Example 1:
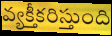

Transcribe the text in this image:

వ్యక్తీకరిస్తుంది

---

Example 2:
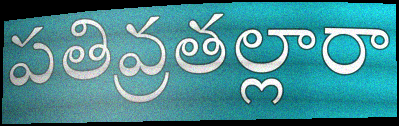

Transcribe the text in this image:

పతివ్రతల్లారా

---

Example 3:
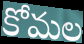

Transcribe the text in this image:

కోమల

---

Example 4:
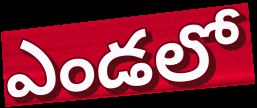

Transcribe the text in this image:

ఎండలో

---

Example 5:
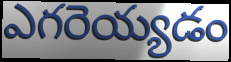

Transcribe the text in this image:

ఎగరెయ్యడం